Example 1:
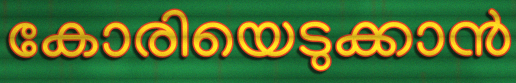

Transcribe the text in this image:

കോരിയെടുക്കാൻ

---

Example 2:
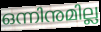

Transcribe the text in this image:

ഒന്നിനുമില്ല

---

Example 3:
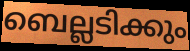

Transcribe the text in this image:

ബെല്ലടിക്കും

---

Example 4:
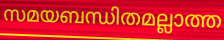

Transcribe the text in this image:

സമയബന്ധിതമല്ലാത്ത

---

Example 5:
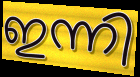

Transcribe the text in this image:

ഇന്നി